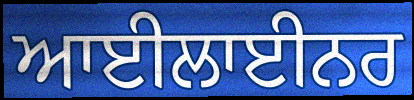
ਆਈਲਾਈਨਰ